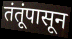
तंतूंपासून